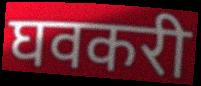
घवकरी